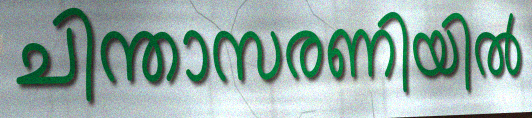
ചിന്താസരണിയിൽ